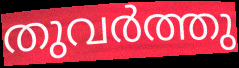
തുവർത്തു